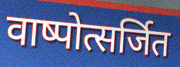
वाष्पोत्सर्जित